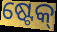
ଷ୍ଟେକ୍